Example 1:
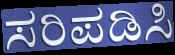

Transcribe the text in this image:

ಸರಿಪಡಿಸಿ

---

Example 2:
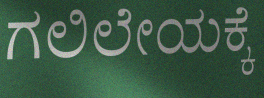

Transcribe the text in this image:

ಗಲಿಲೇಯಕ್ಕೆ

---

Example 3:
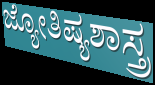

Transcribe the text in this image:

ಜ್ಯೋತಿಷ್ಯಶಾಸ್ತ್ರ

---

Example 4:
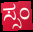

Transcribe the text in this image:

ಸ್ಸಂ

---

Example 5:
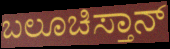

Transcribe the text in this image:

ಬಲೂಚಿಸ್ತಾನ್